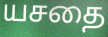
யசதை